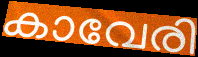
കാവേരി